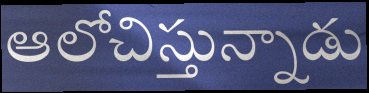
ఆలోచిస్తున్నాడు